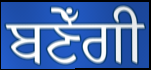
ਬਣੇਁਗੀ